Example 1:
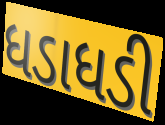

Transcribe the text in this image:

ધડાધડી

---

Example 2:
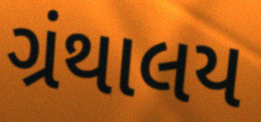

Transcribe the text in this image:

ગ્રંથાલય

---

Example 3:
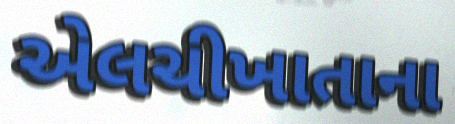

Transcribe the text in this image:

એલચીખાતાના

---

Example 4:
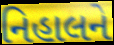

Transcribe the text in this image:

નિહાલને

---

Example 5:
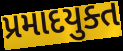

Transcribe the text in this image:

પ્રમાદયુક્ત